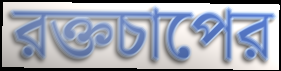
রক্তচাপের